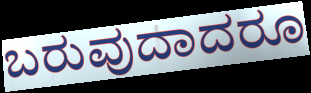
ಬರುವುದಾದರೂ